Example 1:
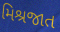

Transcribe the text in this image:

મિશ્રજાત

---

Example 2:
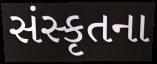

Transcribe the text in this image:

સંસ્‍કૃતના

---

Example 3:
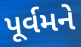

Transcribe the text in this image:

પૂર્વમને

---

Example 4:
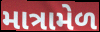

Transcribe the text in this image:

માત્રામેળ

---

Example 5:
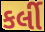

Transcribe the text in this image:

કર્લી